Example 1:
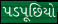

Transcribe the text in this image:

પડપૂછિયો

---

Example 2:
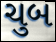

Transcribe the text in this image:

ચુબ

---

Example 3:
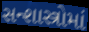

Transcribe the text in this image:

સન્શાસ્ત્રોમાં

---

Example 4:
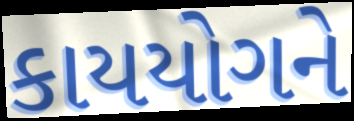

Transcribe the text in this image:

કાયયોગને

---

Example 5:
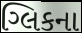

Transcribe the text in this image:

ગ્લિકના